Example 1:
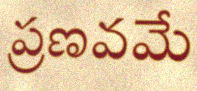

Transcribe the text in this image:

ప్రణవమే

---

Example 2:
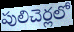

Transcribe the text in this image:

పులిచెర్లలో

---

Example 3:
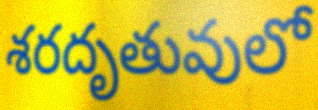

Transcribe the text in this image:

శరదృతువులో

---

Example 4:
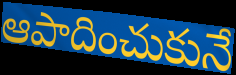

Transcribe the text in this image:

ఆపాదించుకునే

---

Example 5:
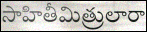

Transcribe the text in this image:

సాహితీమిత్రులారా